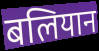
बलियान